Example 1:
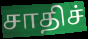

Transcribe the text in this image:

சாதிச்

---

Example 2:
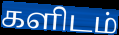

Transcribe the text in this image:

களிடம்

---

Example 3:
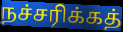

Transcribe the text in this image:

நச்சரிக்கத்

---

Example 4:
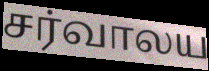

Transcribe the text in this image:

சர்வாலய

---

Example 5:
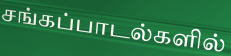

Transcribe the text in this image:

சங்கப்பாடல்களில்